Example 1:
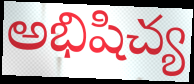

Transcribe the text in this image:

అభిషిచ్య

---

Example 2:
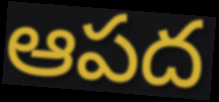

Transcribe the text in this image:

ఆపద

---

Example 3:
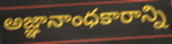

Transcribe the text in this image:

అజ్ఞానాంధకారాన్ని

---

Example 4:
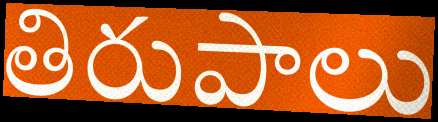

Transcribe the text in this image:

తిరుపాలు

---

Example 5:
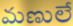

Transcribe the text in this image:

మణులే